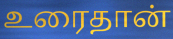
உரைதான்